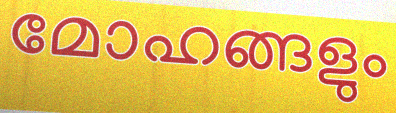
മോഹങ്ങളും